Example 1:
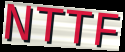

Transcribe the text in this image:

NTTF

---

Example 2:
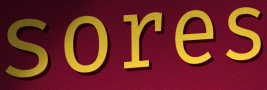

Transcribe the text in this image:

sores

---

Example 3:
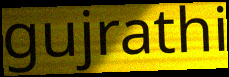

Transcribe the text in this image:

gujrathi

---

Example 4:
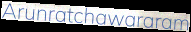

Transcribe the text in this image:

Arunratchawararam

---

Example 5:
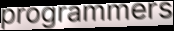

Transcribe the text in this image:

programmers